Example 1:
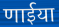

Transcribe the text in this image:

णाईया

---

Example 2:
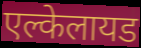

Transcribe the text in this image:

एल्केलायड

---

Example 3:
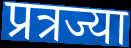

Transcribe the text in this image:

प्रत्रज्या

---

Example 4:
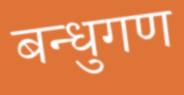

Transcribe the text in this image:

बन्धुगण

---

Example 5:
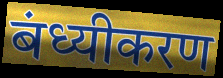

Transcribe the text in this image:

बंध्यीकरण